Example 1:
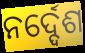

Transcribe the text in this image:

ନର୍ଦ୍ଦେଶ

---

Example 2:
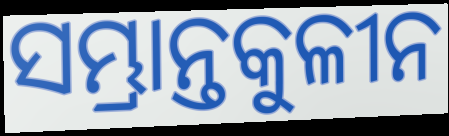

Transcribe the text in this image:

ସମ୍ଭ୍ରାନ୍ତକୁଳୀନ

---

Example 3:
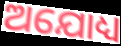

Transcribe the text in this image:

ଅଯୋଧ୍ୟ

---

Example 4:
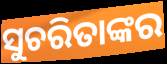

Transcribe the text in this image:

ସୁଚରିତାଙ୍କର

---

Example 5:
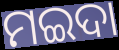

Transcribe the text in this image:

ମଇଦା